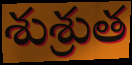
శుశ్రుత